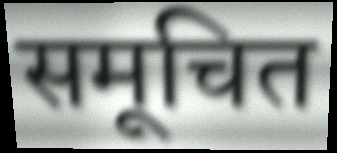
समूचित